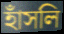
হাঁসলি